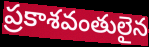
ప్రకాశవంతులైన